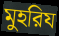
মুহরিয